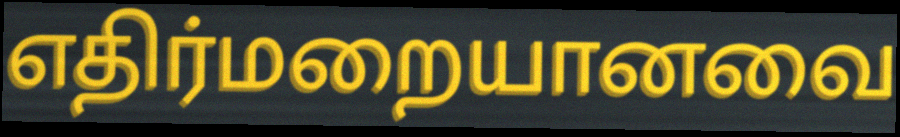
எதிர்மறையானவை